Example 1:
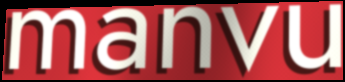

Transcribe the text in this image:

manvu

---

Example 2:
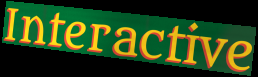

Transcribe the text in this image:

Interactive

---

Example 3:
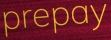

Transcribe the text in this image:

prepay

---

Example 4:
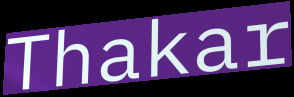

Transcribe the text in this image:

Thakar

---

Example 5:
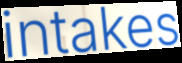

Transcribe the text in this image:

intakes